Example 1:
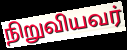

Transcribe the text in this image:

நிறுவியவர்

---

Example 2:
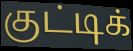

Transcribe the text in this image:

குட்டிக்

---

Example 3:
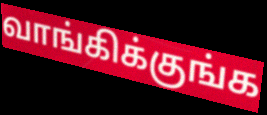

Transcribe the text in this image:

வாங்கிக்குங்க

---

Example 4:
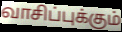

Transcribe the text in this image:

வாசிப்புக்கும்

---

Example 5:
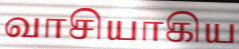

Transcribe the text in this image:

வாசியாகிய